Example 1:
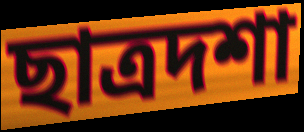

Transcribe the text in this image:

ছাত্রদশা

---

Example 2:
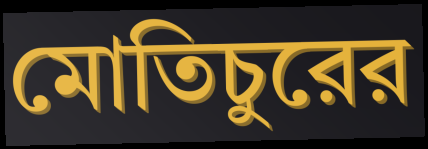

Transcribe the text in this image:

মোতিচুরের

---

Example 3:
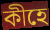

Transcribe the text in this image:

কীহে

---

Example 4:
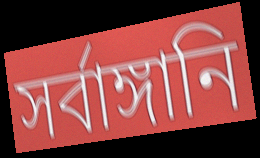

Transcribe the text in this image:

সর্বাঙ্গানি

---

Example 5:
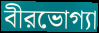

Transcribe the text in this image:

বীরভোগ্যা